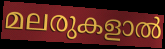
മലരുകളാൽ